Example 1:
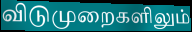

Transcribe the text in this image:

விடுமுறைகளிலும்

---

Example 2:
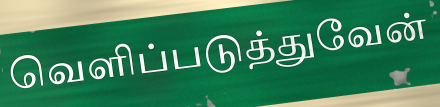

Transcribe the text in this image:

வெளிப்படுத்துவேன்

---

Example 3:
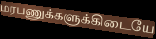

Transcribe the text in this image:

மரபணுக்களுக்கிடையே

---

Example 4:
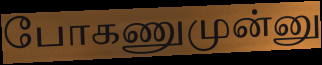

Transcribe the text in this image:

போகணுமுன்னு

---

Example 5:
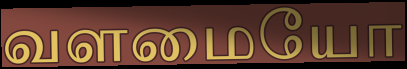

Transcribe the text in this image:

வளமையோ